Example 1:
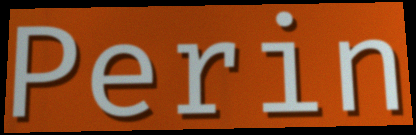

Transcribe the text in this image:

Perin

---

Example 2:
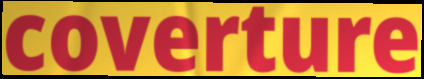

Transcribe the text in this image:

coverture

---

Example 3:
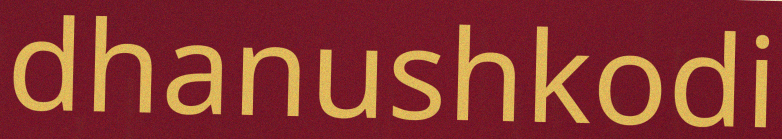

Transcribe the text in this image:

dhanushkodi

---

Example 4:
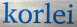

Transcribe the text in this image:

korlei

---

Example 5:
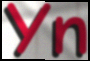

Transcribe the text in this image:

Yn